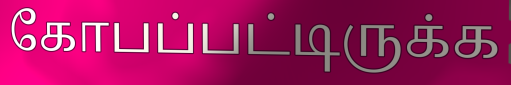
கோபப்பட்டிருக்க